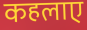
कहलाए